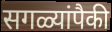
सगळ्यांपैकी